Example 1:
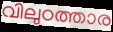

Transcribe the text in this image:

വിലുഠത്താര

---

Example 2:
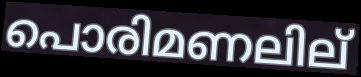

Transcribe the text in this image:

പൊരിമണലില്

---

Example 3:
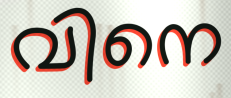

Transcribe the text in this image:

വിനെ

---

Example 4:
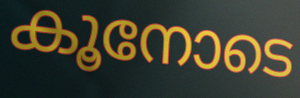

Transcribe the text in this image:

കൂനോടെ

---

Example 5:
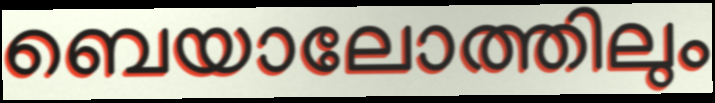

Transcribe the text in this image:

ബെയാലോത്തിലും